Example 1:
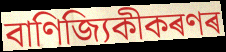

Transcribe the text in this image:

বাণিজ্যিকীকৰণৰ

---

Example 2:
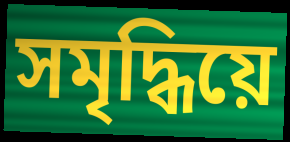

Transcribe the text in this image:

সমৃদ্ধিয়ে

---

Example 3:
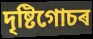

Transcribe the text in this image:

দৃষ্টিগোচৰ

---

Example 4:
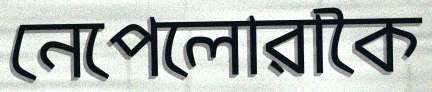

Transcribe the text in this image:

নেপেলোৱাকৈ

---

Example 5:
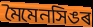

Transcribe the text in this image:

মৈমেনসিঙৰ